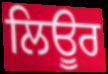
ਲਿਊਰ